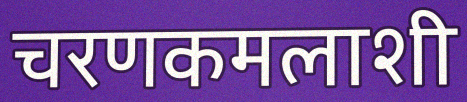
चरणकमलाशी